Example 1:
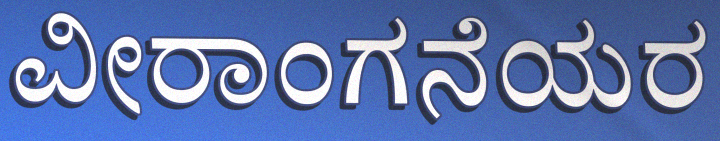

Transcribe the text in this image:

ವೀರಾಂಗನೆಯರ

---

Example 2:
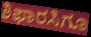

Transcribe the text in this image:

ಶಿಫಾರಸಿಗೂ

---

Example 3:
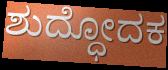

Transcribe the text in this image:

ಶುದ್ಧೋದಕ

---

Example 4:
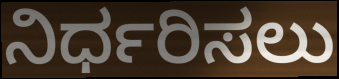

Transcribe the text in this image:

ನಿರ್ಧರಿಸಲು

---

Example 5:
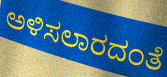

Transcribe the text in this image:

ಅಳಿಸಲಾರದಂತೆ